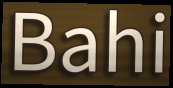
Bahi